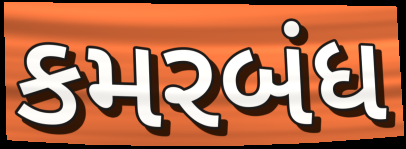
કમરબંધ